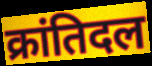
क्रांतिदल